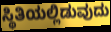
ಸ್ಥಿತಿಯಲ್ಲಿಡುವುದು